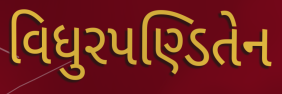
વિધુરપણ્ડિતેન